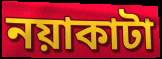
নয়াকাটা